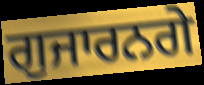
ਗੁਜਾਰਨਗੇ